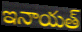
ఇనాయత్